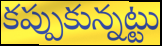
కప్పుకున్నట్టు